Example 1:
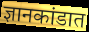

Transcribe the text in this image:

ज्ञानकांडात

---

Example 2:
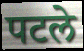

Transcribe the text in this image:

पटले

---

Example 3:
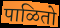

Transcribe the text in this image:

पाळितो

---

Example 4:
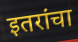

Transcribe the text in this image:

इतरांचा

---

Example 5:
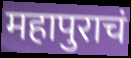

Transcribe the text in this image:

महापुराचं